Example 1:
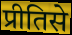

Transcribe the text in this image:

प्रीतिसे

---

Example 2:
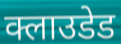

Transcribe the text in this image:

क्लाउडेड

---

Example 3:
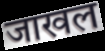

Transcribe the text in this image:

जाखल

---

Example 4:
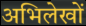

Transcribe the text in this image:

अभिलेखों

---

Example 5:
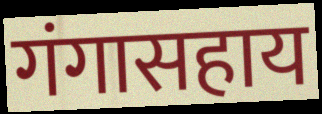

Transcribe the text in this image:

गंगासहाय